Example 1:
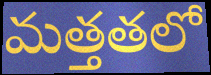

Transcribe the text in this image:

మత్తతలో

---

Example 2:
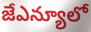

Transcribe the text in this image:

జేఎన్యూలో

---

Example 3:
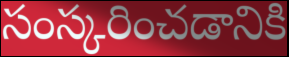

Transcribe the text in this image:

సంస్కరించడానికి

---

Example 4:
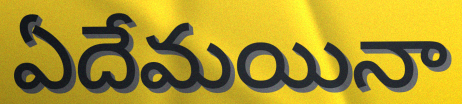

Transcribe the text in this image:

ఏదేమయినా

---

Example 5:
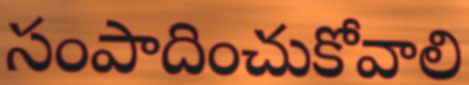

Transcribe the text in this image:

సంపాదించుకోవాలి